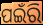
ପଇଁରି